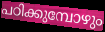
പഠിക്കുമ്പോഴും